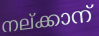
നല്ക്കാന്